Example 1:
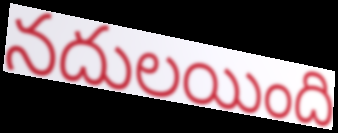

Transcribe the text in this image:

నదులయింది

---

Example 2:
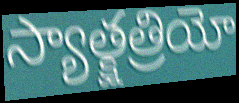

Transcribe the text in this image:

స్యాత్క్షత్రియో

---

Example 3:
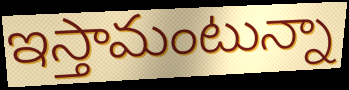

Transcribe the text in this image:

ఇస్తామంటున్నా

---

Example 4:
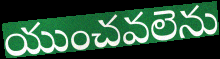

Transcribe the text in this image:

యుంచవలెను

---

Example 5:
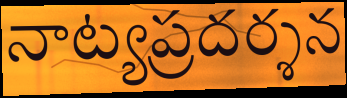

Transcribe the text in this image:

నాట్యప్రదర్శన